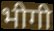
भीगी